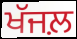
ਖੱਜਲ਼